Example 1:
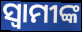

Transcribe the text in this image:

ସ୍ବାମୀଙ୍କ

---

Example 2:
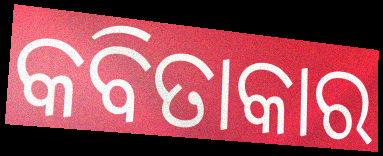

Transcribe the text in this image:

କବିତାକାର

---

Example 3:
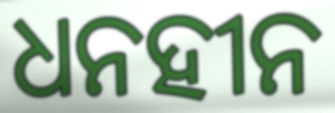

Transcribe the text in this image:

ଧନହୀନ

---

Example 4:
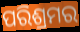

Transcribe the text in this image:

ପରିଶ୍ରମର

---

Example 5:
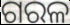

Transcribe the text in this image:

ଗରଳ